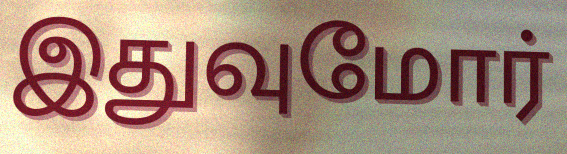
இதுவுமோர்